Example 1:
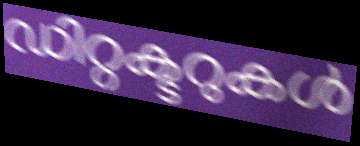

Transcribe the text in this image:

ഡിറ്റക്ടറുകൾ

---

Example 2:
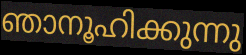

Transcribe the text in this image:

ഞാനൂഹിക്കുന്നു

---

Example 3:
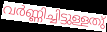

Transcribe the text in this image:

വർണ്ണിച്ചിട്ടുള്ളതു്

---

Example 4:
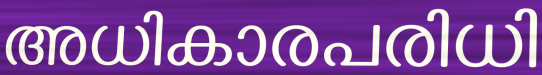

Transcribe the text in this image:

അധികാരപരിധി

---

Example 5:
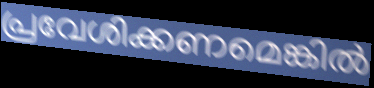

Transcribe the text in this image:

പ്രവേശിക്കണമെങ്കിൽ